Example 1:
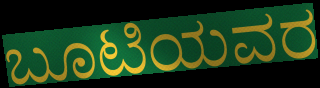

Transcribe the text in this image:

ಬೂಟಿಯವರ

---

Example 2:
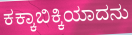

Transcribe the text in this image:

ಕಕ್ಕಾಬಿಕ್ಕಿಯಾದನು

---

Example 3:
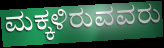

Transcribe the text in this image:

ಮಕ್ಕಳಿರುವವರು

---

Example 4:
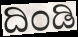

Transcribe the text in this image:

ದಿಂಡಿ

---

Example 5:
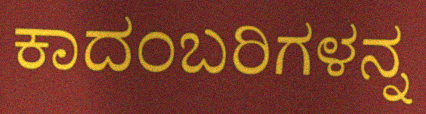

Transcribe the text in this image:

ಕಾದಂಬರಿಗಳನ್ನ